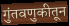
गुंतवणुकीतून